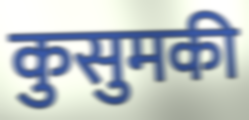
कुसुमकी